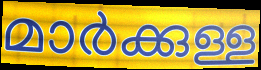
മാർക്കുള്ള